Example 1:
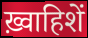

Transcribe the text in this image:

ख़्वाहिशें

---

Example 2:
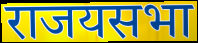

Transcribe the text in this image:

राजयसभा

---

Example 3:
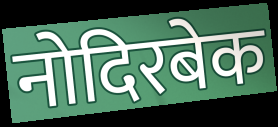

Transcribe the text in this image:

नोदिरबेक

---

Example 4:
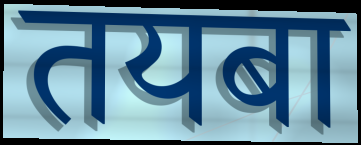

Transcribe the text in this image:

तयबा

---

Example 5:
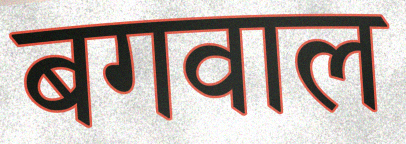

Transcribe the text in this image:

बगवाल